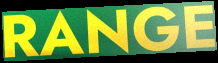
RANGE